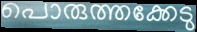
പൊരുത്തക്കേടു